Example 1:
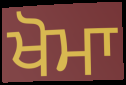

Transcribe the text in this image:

ਖੋਮਾ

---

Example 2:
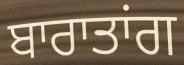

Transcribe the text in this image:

ਬਾਰਾਤਾਂਗ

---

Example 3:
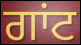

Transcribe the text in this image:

ਗਾਂਟ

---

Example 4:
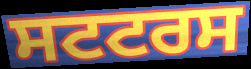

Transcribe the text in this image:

ਸਟਟਰਸ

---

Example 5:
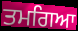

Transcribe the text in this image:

ਤਮਗਿਆ